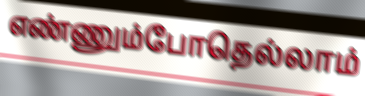
எண்ணும்போதெல்லாம்